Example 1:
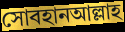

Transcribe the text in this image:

সোবহানআল্লাহ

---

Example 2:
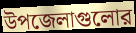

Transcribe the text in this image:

উপজেলাগুলোর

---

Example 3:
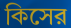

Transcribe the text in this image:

কিসের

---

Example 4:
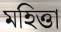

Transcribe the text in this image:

মহিত্তা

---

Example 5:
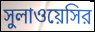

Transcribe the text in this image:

সুলাওয়েসির